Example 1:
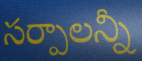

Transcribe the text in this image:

సర్పాలన్నీ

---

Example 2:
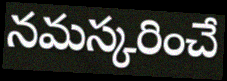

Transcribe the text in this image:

నమస్కరించే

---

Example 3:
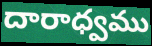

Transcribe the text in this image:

దారాధ్వము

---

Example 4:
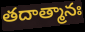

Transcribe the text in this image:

తదాత్మానః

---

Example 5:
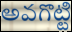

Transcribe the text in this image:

అవగొట్టి